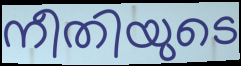
നീതിയുടെ